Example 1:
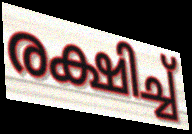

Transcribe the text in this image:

രക്ഷിച്ച്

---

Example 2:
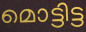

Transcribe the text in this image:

മൊട്ടിട്ട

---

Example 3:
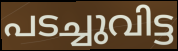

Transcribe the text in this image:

പടച്ചുവിട്ട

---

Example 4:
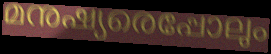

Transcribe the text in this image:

മനുഷ്യരെപ്പോലും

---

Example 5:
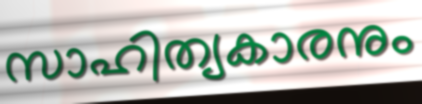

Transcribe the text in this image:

സാഹിത്യകാരനും